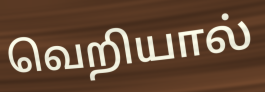
வெறியால்